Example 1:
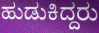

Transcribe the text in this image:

ಹುಡುಕಿದ್ದರು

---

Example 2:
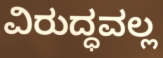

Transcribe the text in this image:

ವಿರುದ್ಧವಲ್ಲ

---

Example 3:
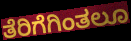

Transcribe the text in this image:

ತೆರಿಗೆಗಿಂತಲೂ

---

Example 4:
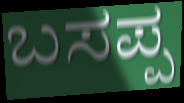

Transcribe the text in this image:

ಬಸಪ್ಪ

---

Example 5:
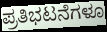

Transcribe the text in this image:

ಪ್ರತಿಭಟನೆಗಳೂ